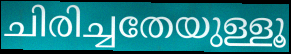
ചിരിച്ചതേയുള്ളൂ